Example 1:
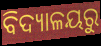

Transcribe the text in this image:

ବିଦ୍ୟାଳୟରୁ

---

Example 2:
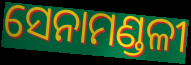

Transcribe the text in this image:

ସେନାମଣ୍ଡଳୀ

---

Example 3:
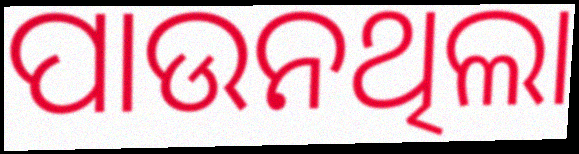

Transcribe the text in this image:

ପାଉନଥିଲା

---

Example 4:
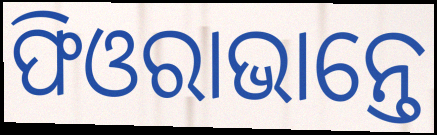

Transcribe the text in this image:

ଫିଓରାଭାନ୍ତେ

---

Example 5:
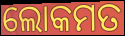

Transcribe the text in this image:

ଲୋକମତ